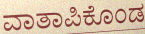
ವಾತಾಪಿಕೊಂಡ